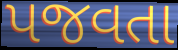
પજવતા